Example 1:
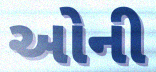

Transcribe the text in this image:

ઓની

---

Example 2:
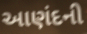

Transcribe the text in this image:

આણંદની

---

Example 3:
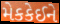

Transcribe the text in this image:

મેકકેઈને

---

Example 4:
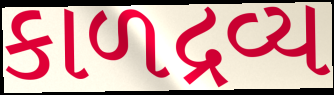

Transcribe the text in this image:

કાળદ્રવ્ય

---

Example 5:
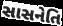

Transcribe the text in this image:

સાસનેતિ